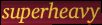
superheavy